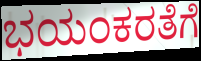
ಭಯಂಕರತೆಗೆ